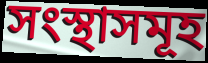
সংস্থাসমূহ